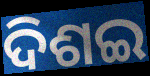
ଦିଶଇ